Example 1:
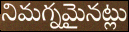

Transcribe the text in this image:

నిమగ్నమైనట్లు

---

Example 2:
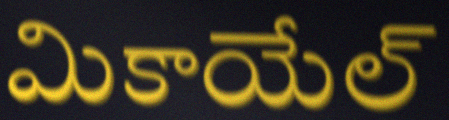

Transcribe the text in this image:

మికాయేల్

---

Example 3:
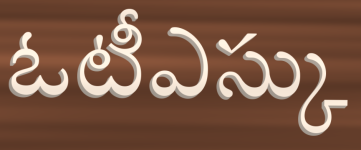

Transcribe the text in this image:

ఓటీఎస్కు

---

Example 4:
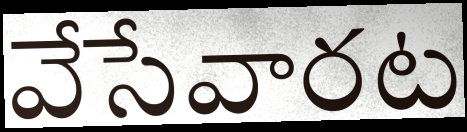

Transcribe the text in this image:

వేసేవారట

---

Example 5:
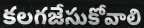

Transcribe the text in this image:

కలగజేసుకోవాలి